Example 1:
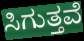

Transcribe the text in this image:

ಸಿಗುತ್ತವೆ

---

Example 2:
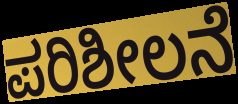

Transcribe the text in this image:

ಪರಿಶೀಲನೆ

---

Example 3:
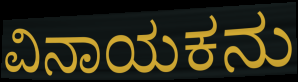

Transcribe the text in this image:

ವಿನಾಯಕನು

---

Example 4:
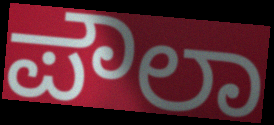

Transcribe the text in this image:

ಪೌಲಾ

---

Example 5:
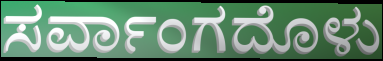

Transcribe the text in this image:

ಸರ್ವಾಂಗದೊಳು